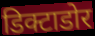
डिक्टाडोर